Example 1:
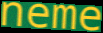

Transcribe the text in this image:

neme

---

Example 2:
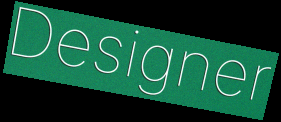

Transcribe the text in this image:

Designer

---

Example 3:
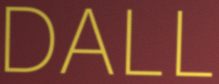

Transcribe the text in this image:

DALL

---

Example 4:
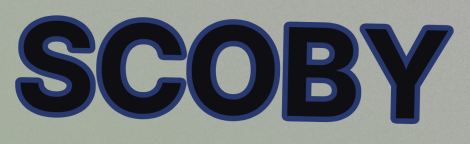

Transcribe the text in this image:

SCOBY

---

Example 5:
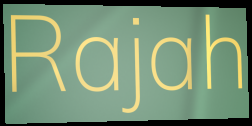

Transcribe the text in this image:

Rajah